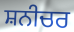
ਸ਼ਨੀਚਰ